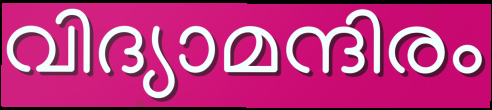
വിദ്യാമന്ദിരം